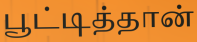
பூட்டித்தான்